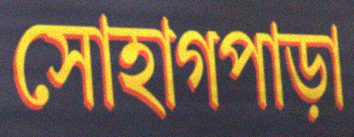
সোহাগপাড়া